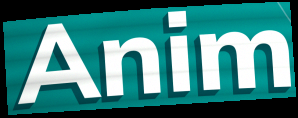
Anim